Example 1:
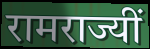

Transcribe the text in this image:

रामराज्यीं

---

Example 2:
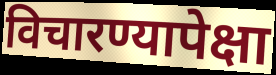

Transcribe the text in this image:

विचारण्यापेक्षा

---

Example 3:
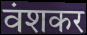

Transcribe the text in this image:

वंशकर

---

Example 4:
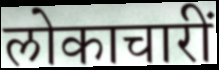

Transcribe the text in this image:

लोकाचारीं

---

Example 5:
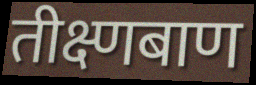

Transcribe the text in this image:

तीक्ष्णबाण